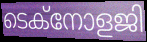
ടെക്നോളജി